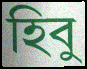
হিবু